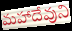
మహాదేవుని